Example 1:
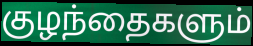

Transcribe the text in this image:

குழந்தைகளும்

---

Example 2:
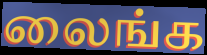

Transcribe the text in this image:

லைங்க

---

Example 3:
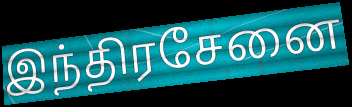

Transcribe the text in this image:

இந்திரசேனை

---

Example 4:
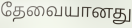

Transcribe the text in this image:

தேவையானது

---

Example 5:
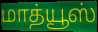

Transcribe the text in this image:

மாத்யூஸ்